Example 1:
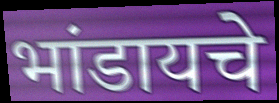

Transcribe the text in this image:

भांडायचे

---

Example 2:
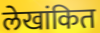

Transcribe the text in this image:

लेखांकित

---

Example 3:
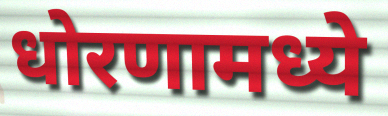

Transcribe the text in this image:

धोरणामध्ये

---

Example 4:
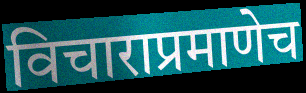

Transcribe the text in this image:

विचाराप्रमाणेच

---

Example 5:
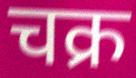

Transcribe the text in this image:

चक्र